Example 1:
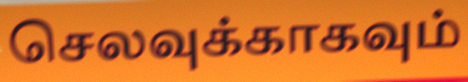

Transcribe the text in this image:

செலவுக்காகவும்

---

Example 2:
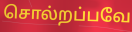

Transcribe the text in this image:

சொல்றப்பவே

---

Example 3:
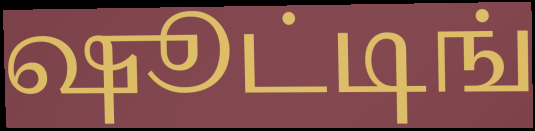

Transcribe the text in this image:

ஷூட்டிங்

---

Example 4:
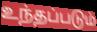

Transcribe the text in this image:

உந்தப்படும்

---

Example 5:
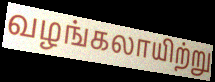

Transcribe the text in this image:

வழங்கலாயிற்று